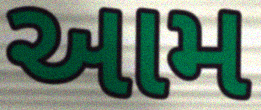
આમ